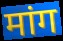
मांग